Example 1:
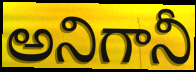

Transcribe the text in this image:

అనిగానీ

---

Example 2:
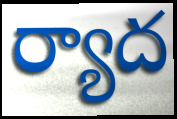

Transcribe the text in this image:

ర్యాద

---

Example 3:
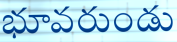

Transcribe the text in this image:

భూవరుండు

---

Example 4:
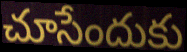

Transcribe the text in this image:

చూసేందుకు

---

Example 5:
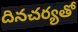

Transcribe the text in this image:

దినచర్యతో